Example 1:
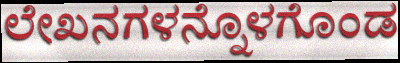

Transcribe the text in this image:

ಲೇಖನಗಳನ್ನೊಳಗೊಂಡ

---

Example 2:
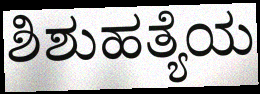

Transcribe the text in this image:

ಶಿಶುಹತ್ಯೆಯ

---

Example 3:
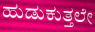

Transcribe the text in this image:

ಹುಡುಕುತ್ತಲೇ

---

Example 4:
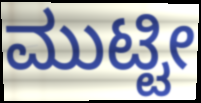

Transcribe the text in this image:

ಮುಟ್ಟೀ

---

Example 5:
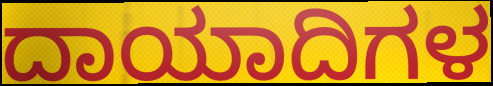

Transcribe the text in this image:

ದಾಯಾದಿಗಳ